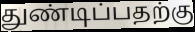
துண்டிப்பதற்கு